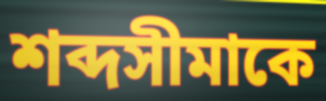
শব্দসীমাকে